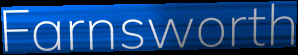
Farnsworth